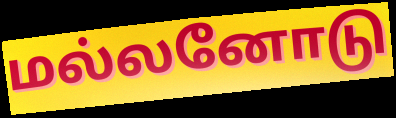
மல்லனோடு